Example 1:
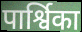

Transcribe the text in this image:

पार्श्विका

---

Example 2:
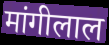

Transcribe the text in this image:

मांगीलाल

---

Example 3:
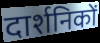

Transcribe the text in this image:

दार्शनिकों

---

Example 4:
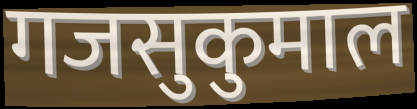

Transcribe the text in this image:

गजसुकुमाल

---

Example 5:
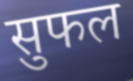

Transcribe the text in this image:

सुफल